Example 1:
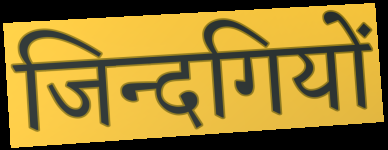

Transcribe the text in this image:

जिन्दगियों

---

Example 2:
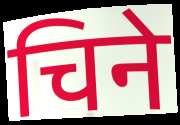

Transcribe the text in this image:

चिने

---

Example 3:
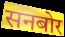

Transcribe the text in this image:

सनबोर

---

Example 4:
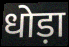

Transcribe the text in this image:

धोड़ा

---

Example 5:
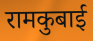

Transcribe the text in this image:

रामकुबाई